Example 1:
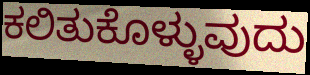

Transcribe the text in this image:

ಕಲಿತುಕೊಳ್ಳುವುದು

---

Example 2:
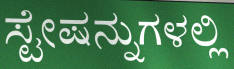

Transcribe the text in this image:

ಸ್ಟೇಷನ್ನುಗಳಲ್ಲಿ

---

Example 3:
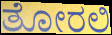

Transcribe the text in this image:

ತೋರಲಿ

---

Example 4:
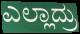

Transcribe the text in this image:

ಎಲ್ಲಾದ್ರು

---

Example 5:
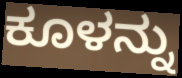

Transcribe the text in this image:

ಕೂಳನ್ನು